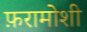
फ़रामोशी